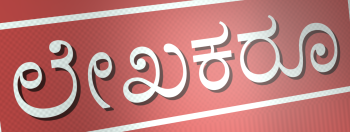
ಲೇಖಕರೂ